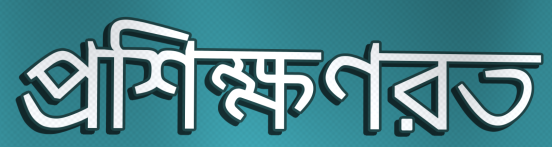
প্রশিক্ষণরত